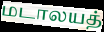
மடாலயத்